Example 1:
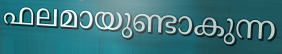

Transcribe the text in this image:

ഫലമായുണ്ടാകുന്ന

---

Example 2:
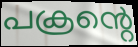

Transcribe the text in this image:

പക്രന്റെ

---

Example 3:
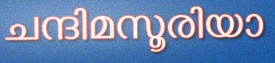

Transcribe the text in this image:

ചന്ദിമസൂരിയാ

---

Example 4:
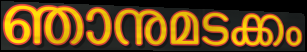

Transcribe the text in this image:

ഞാനുമടക്കം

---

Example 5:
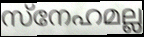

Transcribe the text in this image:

സ്നേഹമല്ല